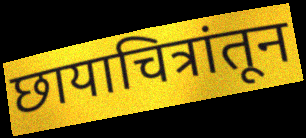
छायाचित्रांतून